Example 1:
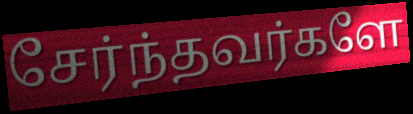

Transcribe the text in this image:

சேர்ந்தவர்களே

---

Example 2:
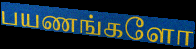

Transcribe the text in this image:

பயணங்களோ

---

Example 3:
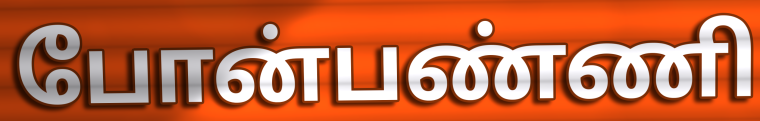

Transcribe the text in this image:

போன்பண்ணி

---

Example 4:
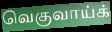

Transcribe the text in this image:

வெகுவாய்க்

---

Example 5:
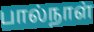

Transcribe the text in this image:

பால்நாள்